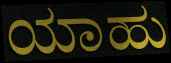
ಯಾಹು